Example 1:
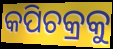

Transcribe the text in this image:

କପିଚକ୍ରକୁ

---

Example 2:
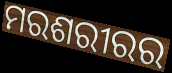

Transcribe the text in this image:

ମରଶରୀରର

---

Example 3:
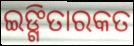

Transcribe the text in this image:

ଇଙ୍ଗିତାରକତ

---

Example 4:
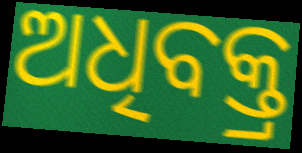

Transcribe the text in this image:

ଅଧିବକ୍ତ୍ର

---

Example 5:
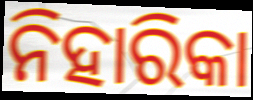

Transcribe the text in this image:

ନିହାରିକା